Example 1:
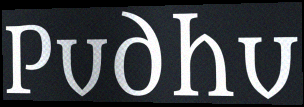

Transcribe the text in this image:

Pudhu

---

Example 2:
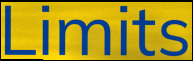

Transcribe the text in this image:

Limits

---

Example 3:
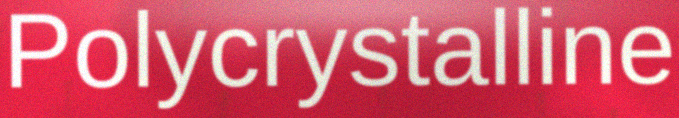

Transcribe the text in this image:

Polycrystalline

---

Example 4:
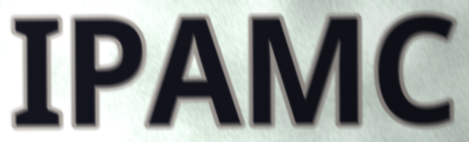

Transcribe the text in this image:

IPAMC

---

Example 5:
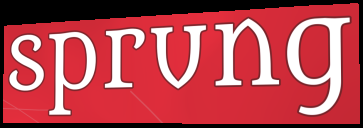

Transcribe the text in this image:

sprung